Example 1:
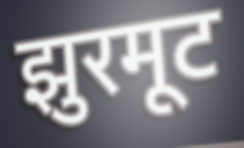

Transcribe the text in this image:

झुरमूट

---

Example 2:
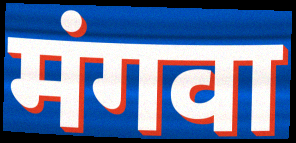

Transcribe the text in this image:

मंगवा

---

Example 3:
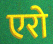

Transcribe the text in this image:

एरो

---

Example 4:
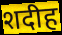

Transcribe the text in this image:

शदीह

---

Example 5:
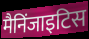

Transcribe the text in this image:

मैनिंजाइटिस